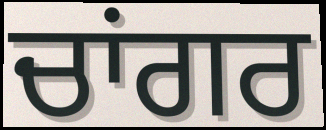
ਚਾਂਗਰ